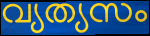
വ്യത്യസം